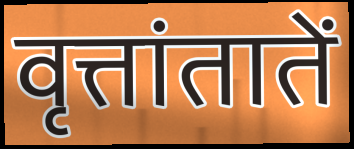
वृत्तांतातें